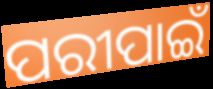
ପରୀପାଇଁ